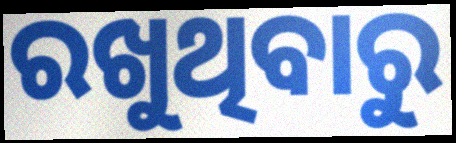
ରଖୁଥିବାରୁ